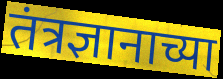
तंत्रज्ञानाच्या